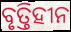
ବୃତ୍ତିହୀନ